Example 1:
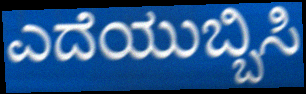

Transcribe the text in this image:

ಎದೆಯುಬ್ಬಿಸಿ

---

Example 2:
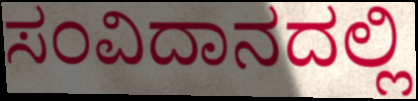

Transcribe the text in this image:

ಸಂವಿದಾನದಲ್ಲಿ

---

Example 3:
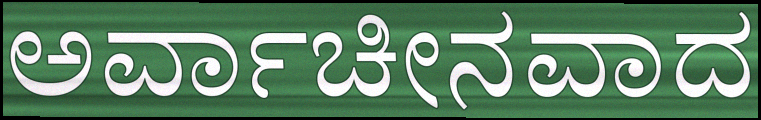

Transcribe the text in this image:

ಅರ್ವಾಚೀನವಾದ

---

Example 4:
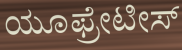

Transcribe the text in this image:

ಯೂಫ್ರೇಟೀಸ್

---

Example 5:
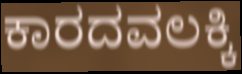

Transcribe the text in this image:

ಕಾರದವಲಕ್ಕಿ